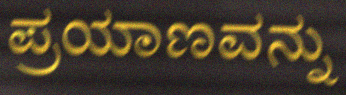
ಪ್ರಯಾಣವನ್ನು